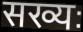
सख्यः